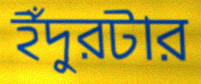
ইঁদুরটার